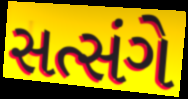
સત્સંગે